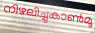
നിഴലിച്ചുകാൺമൂ